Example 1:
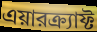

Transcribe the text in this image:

এয়ারক্র্যাফ্ট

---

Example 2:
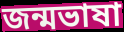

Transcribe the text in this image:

জন্মভাষা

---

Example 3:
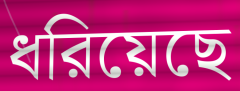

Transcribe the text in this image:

ধরিয়েছে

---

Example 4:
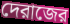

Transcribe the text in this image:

দেরাজের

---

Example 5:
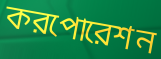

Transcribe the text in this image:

করপোরেশন